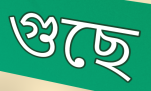
গুছে